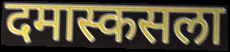
दमास्कसला